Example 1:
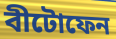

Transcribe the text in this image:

বীটোফেন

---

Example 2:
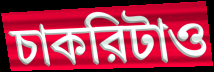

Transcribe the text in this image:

চাকরিটাও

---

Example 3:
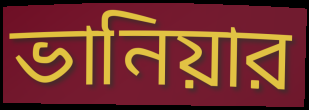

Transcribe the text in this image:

ভানিয়ার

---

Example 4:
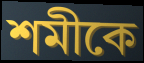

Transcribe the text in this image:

শমীকে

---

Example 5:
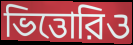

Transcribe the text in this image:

ভিত্তোরিও